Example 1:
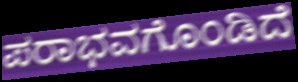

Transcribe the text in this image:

ಪರಾಭವಗೊಂಡಿದೆ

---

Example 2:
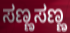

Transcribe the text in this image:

ಸಣ್ಣಸಣ್ಣ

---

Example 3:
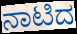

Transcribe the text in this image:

ನಾಟಿದ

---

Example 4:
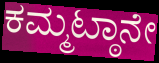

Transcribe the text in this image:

ಕಮ್ಮಟ್ಠಾನೇ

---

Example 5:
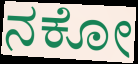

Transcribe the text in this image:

ನಕೋ